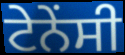
ਟੇਨੇਂਸੀ